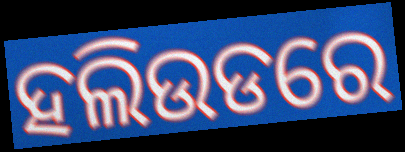
ହଲିଉଡରେ